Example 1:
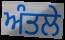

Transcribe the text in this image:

ਅੰਤਲੇ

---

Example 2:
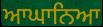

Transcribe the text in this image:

ਆਘਾਨਿਆ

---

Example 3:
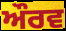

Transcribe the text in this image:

ਔਰਵ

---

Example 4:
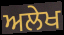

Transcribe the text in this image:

ਅਲੇਖ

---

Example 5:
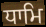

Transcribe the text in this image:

ਧਾਮਿ